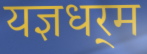
यज्ञधर्म